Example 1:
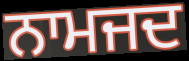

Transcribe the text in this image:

ਨਾਮਜਦ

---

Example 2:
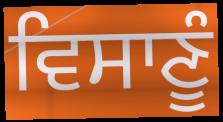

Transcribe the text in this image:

ਵਿਸਾਣੂੰ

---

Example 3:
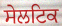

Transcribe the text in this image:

ਸੇਲਟਿਕ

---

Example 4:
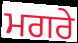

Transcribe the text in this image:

ਮਗਰੇ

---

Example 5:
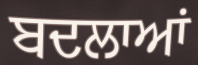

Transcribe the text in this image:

ਬਦਲਾਆਂ